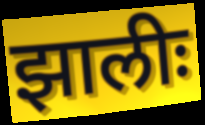
झालीः